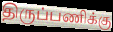
திருப்பணிக்கு